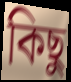
কিছু